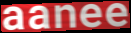
aanee